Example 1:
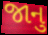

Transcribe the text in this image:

જાનુ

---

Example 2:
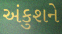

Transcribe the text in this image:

અંકુશને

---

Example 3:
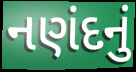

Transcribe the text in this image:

નણંદનું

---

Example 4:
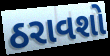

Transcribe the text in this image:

ઠરાવશો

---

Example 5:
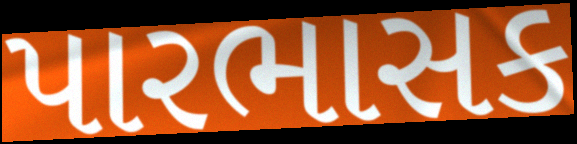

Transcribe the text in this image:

પારભાસક